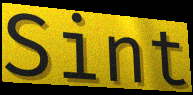
Sint